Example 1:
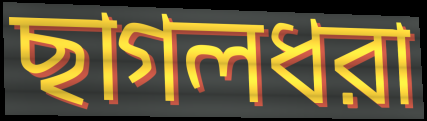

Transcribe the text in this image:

ছাগলধরা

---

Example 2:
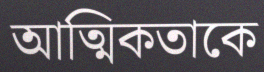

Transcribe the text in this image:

আত্মিকতাকে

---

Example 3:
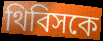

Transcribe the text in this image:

থিবিসকে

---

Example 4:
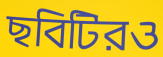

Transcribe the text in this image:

ছবিটিরও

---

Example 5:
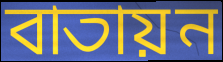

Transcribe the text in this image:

বাতায়ন